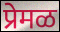
प्रेमळ